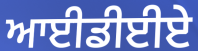
ਆਈਡੀਈਏ